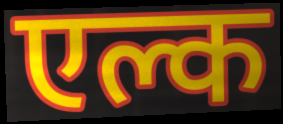
एल्क